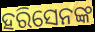
ହରିସେନଙ୍କ